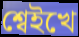
শ্বেইখে